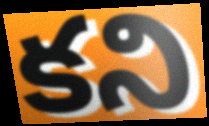
కని